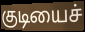
குடியைச்